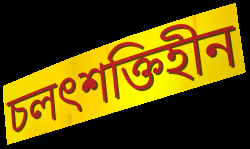
চলৎশক্তিহীন